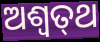
ଅଶ୍ଵତ୍‍ଥ